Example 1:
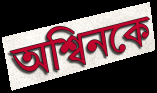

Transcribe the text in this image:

অশ্বিনকে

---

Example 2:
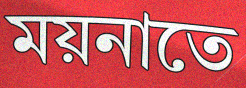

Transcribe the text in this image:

ময়নাতে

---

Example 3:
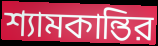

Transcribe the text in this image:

শ্যামকান্তির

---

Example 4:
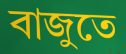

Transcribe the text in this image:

বাজুতে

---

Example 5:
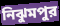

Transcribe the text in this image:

নিঝুমপুর